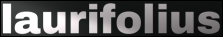
laurifolius